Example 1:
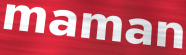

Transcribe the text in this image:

maman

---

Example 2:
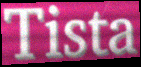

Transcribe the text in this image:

Tista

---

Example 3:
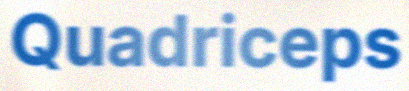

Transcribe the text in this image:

Quadriceps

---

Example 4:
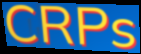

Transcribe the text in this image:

CRPs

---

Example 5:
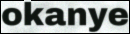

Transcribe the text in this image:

okanye